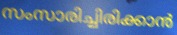
സംസാരിച്ചിരിക്കാൻ